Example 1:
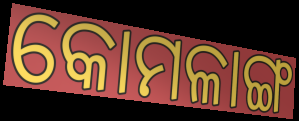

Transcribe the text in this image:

କୋମଳାଙ୍ଗ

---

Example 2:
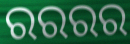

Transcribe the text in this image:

ରରରର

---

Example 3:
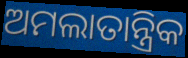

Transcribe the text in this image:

ଅମଲାତାନ୍ତ୍ରିକ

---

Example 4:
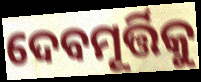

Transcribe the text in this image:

ଦେବମୂର୍ତ୍ତିକୁ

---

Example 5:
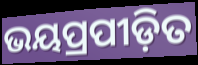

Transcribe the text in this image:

ଭୟପ୍ରପୀଡ଼ିତ